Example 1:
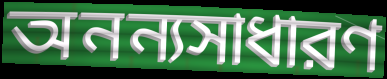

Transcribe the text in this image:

অনন্যসাধারণ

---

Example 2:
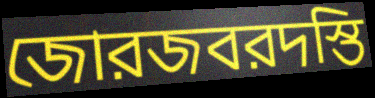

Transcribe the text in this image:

জোরজবরদস্তি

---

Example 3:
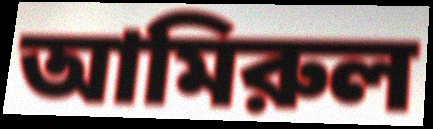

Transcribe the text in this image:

আমিরুল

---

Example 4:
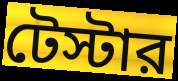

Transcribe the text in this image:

টেস্টার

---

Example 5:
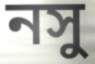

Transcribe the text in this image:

নসু